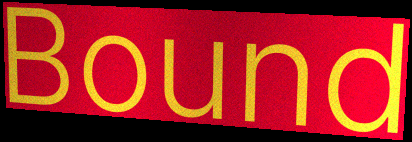
Bound